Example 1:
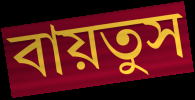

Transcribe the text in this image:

বায়তুস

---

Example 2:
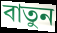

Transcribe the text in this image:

বাতুন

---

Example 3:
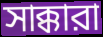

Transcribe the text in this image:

সাক্কারা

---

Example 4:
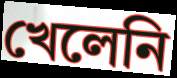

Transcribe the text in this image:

খেলেনি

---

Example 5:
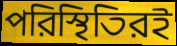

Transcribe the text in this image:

পরিস্থিতিরই